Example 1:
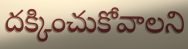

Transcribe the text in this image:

దక్కించుకోవాలని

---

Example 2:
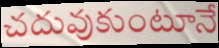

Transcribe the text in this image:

చదువుకుంటూనే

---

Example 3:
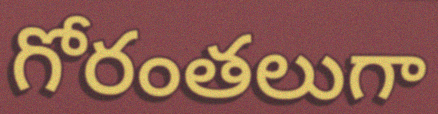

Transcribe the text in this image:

గోరంతలుగా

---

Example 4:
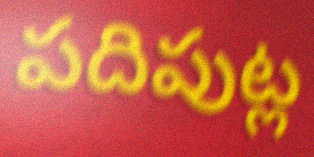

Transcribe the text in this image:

పదిపుట్ల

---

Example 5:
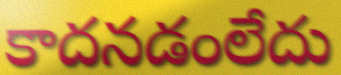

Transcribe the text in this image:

కాదనడంలేదు